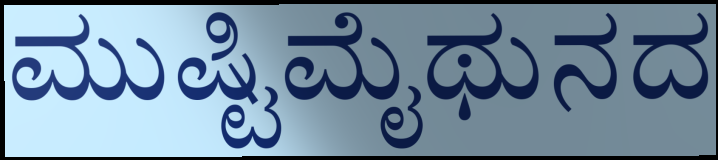
ಮುಷ್ಟಿಮೈಥುನದ